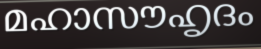
മഹാസൗഹൃദം